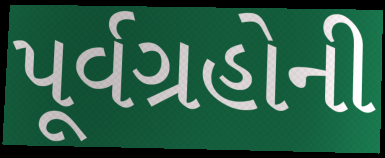
પૂર્વગ્રહોની